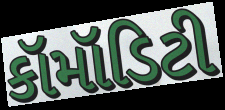
કૉમૉડિટી